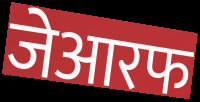
जेआरफ